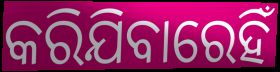
କରିଯିବାରେହିଁ